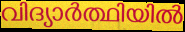
വിദ്യാർത്ഥിയിൽ